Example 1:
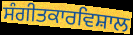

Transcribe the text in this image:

ਸੰਗੀਤਕਾਰਵਿਸ਼ਾਲ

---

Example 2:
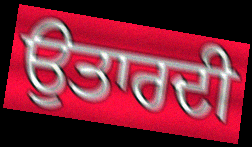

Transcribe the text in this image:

ਉਤਾਰਦੀ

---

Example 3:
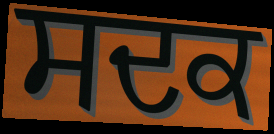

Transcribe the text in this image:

ਸਦਕ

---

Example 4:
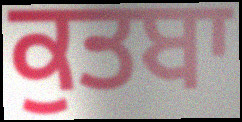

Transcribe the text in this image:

ਕੁਤਬਾ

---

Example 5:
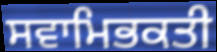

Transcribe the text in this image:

ਸਵਾਮਿਭਕਤੀ